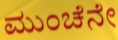
ಮುಂಚೆನೇ